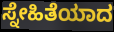
ಸ್ನೇಹಿತೆಯಾದ